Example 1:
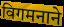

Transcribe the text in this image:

विगमनाने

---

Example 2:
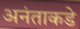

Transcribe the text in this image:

अनंताकडे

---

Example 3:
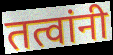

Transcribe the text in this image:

तत्वांनी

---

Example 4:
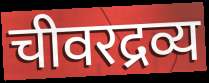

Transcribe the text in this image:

चीवरद्रव्य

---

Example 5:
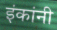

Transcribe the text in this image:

इंकांनी